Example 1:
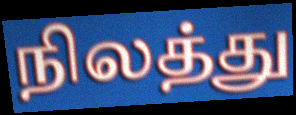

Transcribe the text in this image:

நிலத்து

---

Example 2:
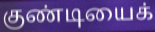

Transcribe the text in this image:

குண்டியைக்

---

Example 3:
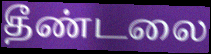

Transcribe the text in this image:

தீண்டலை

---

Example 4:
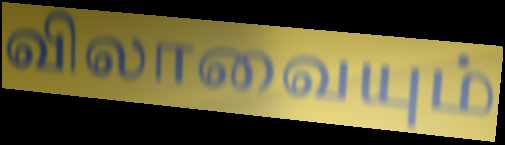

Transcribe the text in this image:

விலாவையும்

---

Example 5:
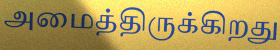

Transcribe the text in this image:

அமைத்திருக்கிறது